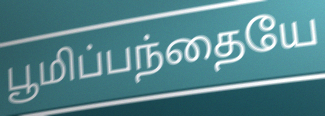
பூமிப்பந்தையே